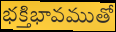
భక్తిభావముతో